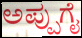
ಅಪ್ಪುಗೈ